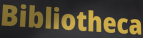
Bibliotheca